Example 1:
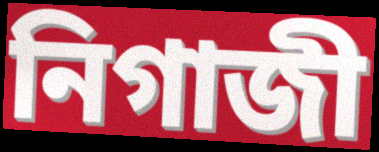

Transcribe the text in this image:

নিগাজী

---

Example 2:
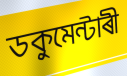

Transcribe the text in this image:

ডকুমেন্টাৰী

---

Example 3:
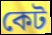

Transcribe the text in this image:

কেট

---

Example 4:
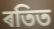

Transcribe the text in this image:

ৰতিত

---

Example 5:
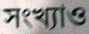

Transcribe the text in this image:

সংখ্যাও